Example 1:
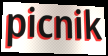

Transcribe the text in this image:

picnik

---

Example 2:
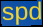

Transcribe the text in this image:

spd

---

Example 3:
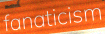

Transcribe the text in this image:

fanaticism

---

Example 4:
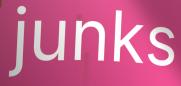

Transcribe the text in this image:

junks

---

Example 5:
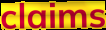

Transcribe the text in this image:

claims